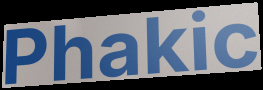
Phakic